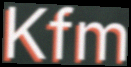
Kfm